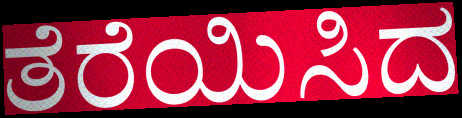
ತೆರೆಯಿಸಿದ